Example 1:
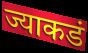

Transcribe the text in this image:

ज्याकडं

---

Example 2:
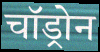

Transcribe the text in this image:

चॉड्रोन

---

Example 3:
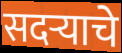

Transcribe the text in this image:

सदऱ्याचे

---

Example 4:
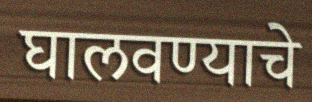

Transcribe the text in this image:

घालवण्याचे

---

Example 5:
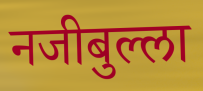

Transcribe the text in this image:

नजीबुल्ला